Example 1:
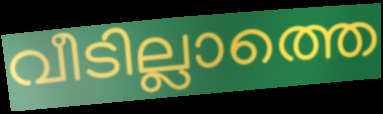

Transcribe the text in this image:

വീടില്ലാത്തെ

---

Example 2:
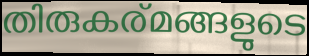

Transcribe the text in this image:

തിരുകര്മങ്ങളുടെ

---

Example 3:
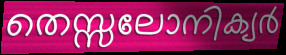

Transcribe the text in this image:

തെസ്സലോനിക്യർ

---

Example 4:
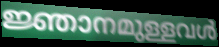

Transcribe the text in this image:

ജ്ഞാനമുള്ളവൾ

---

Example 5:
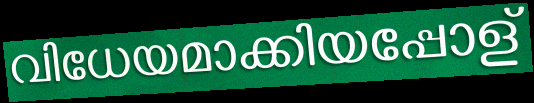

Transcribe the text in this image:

വിധേയമാക്കിയപ്പോള്